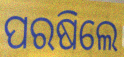
ପରଷିଲେ